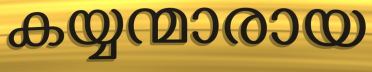
കയ്യന്മാരായ